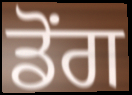
ਡੋਂਗ